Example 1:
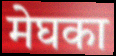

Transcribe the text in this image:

मेघका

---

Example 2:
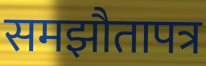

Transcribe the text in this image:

समझौतापत्र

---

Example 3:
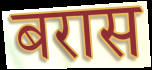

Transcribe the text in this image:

बरास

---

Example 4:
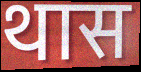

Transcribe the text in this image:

थास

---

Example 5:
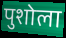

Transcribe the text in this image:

पुशोला